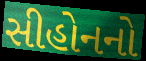
સીહોનનો